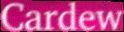
Cardew